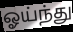
ஓய்ந்து